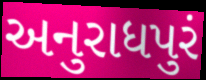
અનુરાધપુરં